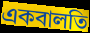
একবালতি